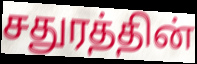
சதுரத்தின்